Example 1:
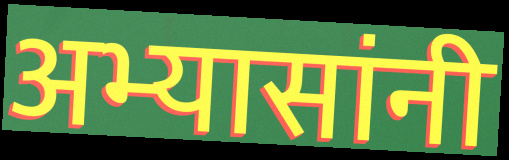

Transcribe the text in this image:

अभ्यासांनी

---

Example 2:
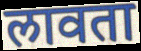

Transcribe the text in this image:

लावता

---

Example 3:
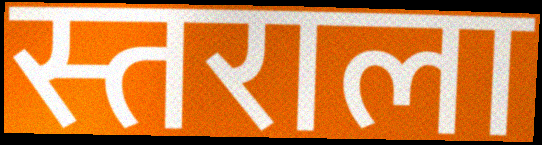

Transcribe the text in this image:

स्तराला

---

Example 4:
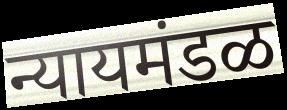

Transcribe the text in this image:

न्यायमंडळ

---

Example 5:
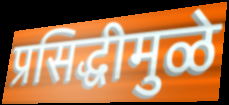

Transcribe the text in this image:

प्रसिद्धीमुळे